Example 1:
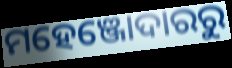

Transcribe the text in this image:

ମହେଞ୍ଜୋଦାରରୁ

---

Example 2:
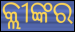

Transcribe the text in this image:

କ୍ଲୀଙ୍କର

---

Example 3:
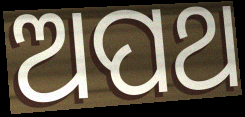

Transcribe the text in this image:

ଅପଥ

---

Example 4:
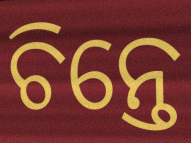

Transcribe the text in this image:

ଚିନ୍ତେ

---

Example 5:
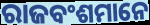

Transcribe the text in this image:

ରାଜବଂଶମାନେ